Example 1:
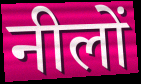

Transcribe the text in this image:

नीलों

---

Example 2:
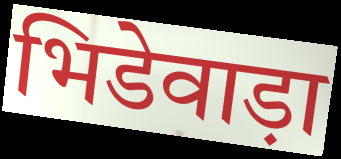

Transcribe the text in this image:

भिडेवाड़ा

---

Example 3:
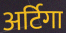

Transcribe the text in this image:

अर्टिगा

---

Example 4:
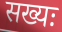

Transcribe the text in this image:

सख्यः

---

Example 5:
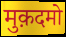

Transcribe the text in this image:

मुक़दमो